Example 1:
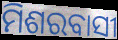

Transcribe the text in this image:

ମିଶରବାସୀ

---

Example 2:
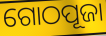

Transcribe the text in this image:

ଗୋଠପୂଜା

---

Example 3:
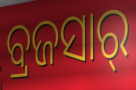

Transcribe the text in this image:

ବ୍ରଜସାର୍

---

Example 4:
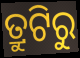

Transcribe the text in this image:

ତ୍ରୁଟିରୁ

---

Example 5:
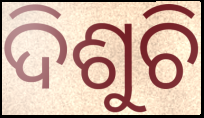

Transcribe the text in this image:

ଦିଶୁଚି